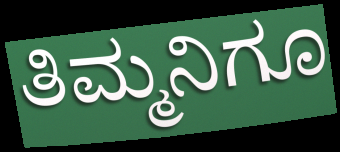
ತಿಮ್ಮನಿಗೂ